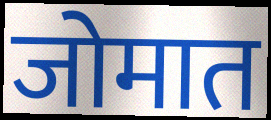
जोमात